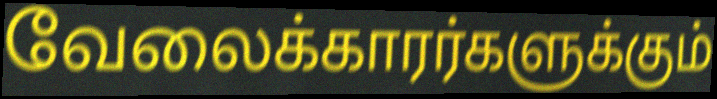
வேலைக்காரர்களுக்கும்